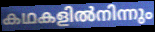
കഥകളിൽനിന്നും